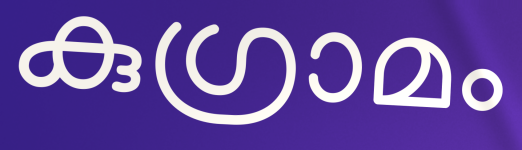
കുഗ്രാമം